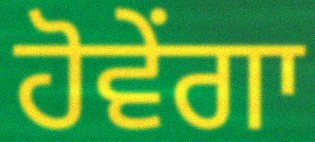
ਹੋਵੇਂਗਾ